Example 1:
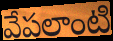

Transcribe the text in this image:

వేపలాంటి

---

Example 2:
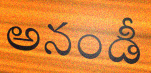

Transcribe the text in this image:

అనండీ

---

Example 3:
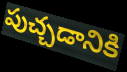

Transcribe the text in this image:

పుచ్చడానికి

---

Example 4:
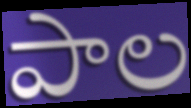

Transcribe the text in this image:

పాల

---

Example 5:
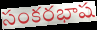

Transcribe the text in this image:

సంకరభాష